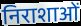
निराशाओं